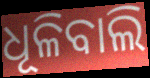
ଧୂଳିବାଲି